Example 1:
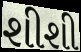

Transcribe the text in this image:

શીશી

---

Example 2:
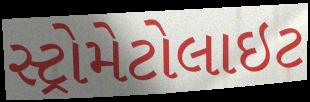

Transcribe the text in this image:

સ્ટ્રોમેટોલાઇટ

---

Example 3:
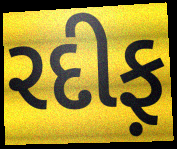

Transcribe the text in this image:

રદીફ઼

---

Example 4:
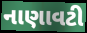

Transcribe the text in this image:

નાણાવટી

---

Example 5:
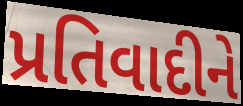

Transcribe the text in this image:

પ્રતિવાદીને